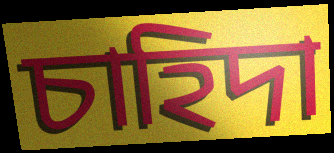
চাহিদা